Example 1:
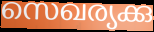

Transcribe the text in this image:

സെഖര്യക്കു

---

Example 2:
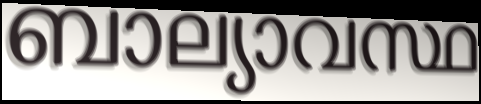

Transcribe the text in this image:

ബാല്യാവസ്ഥ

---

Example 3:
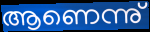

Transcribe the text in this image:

ആണെന്നു്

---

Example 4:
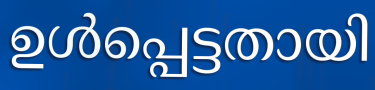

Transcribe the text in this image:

ഉൾപ്പെട്ടതായി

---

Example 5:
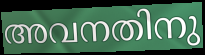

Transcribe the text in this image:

അവനതിനു